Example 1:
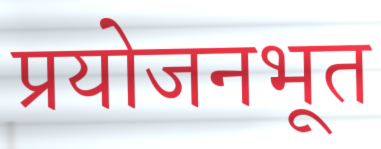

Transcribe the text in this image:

प्रयोजनभूत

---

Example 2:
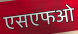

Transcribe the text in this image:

एसएफओ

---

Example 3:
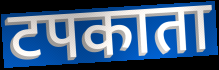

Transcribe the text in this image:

टपकाता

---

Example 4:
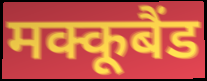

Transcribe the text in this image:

मक्कूबैंड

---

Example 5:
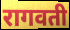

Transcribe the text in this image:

रागवती